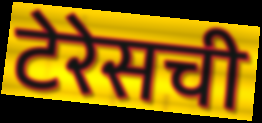
टेरेसची